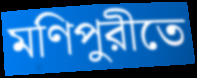
মণিপুরীতে